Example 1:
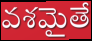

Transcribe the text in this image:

వశమైతే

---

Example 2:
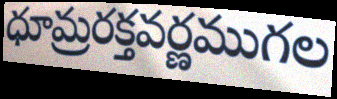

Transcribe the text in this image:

ధూమ్రరక్తవర్ణముగల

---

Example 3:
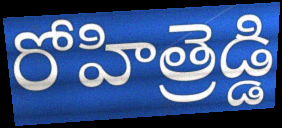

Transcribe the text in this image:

రోహిత్రెడ్డి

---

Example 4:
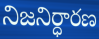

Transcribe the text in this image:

నిజనిర్ధారణ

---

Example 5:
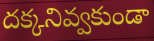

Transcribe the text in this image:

దక్కనివ్వకుండా